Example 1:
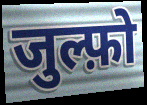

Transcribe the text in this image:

जुल्फ़ो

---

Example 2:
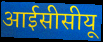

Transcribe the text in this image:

आईसीसीयू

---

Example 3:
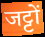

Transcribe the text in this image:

जट्टों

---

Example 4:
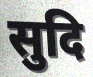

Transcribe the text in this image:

सुदि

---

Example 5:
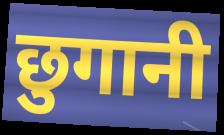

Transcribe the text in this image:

छुगानी